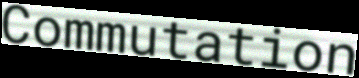
Commutation